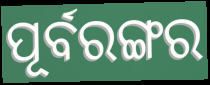
ପୂର୍ବରଙ୍ଗର